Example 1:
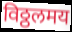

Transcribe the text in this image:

विठ्ठलमय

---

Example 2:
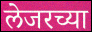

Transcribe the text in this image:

लेजरच्या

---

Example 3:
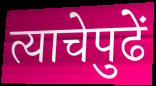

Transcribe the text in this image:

त्याचेपुढें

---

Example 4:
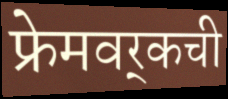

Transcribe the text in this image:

फ्रेमवर्कची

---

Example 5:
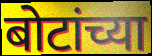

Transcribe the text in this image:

बोटांच्या